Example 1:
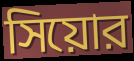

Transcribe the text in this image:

সিয়োর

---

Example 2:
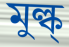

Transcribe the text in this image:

মুল্ক্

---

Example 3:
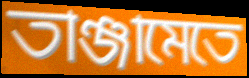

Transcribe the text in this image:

তাঞ্জামেতে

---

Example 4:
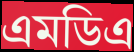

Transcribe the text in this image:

এমডিএ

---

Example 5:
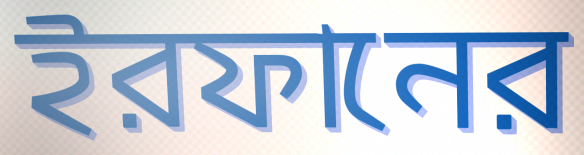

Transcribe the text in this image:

ইরফানের